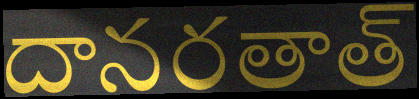
దానరతాత్